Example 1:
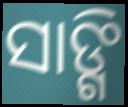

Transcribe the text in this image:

ସାଙ୍ଗି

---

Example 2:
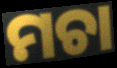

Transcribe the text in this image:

ମଚା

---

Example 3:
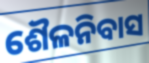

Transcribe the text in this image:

ଶୈଳନିବାସ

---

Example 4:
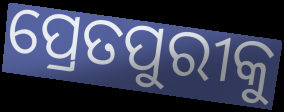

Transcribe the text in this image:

ପ୍ରେତପୁରୀକୁ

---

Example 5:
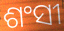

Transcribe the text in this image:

ଶଂସୀ